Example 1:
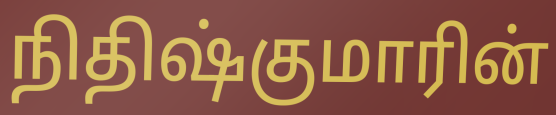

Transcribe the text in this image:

நிதிஷ்குமாரின்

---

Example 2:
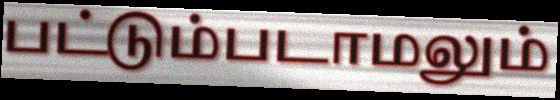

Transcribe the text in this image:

பட்டும்படாமலும்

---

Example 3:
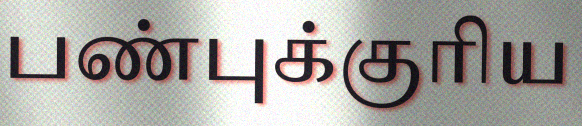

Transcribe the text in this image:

பண்புக்குரிய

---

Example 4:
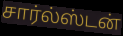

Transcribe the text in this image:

சார்ல்ஸ்டன்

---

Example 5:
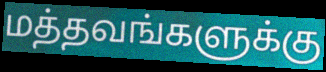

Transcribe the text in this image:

மத்தவங்களுக்கு